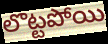
లొట్టపోయి